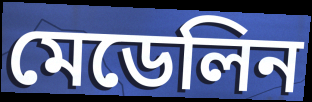
মেডেলিন